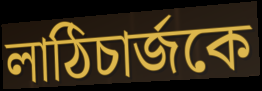
লাঠিচার্জকে